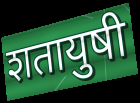
शतायुषी